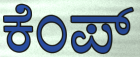
ಕೆಂಪ್